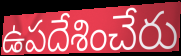
ఉపదేశించేరు